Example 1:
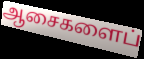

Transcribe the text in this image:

ஆசைகளைப்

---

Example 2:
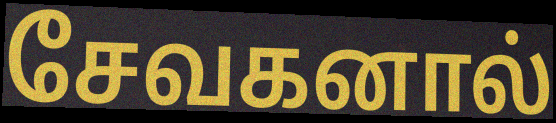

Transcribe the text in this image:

சேவகனால்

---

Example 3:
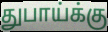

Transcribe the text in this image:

துபாய்க்கு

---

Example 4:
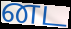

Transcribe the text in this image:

னட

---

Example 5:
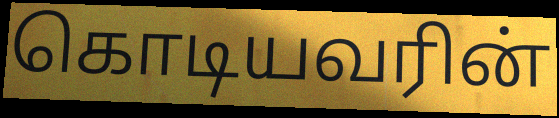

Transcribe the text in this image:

கொடியவரின்